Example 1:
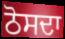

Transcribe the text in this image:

ਠੋਸਦਾ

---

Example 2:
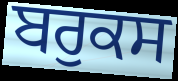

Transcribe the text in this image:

ਬਰੁਕਸ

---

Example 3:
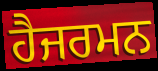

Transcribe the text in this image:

ਹੈਜਰਮਨ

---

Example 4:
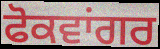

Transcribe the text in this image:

ਫੋਕਵਾਂਗਰ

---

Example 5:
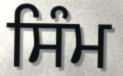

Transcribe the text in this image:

ਸਿੰਮ